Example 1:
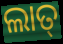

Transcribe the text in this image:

ଲାତ୍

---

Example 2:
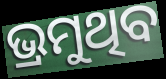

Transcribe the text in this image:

ଭ୍ରମୁଥିବ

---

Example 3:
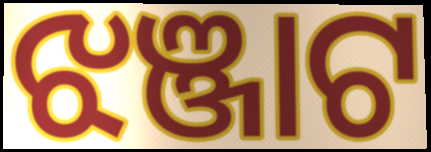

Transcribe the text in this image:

ଝଞ୍ଜାଟ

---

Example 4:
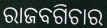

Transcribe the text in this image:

ରାଜବଗିଚାର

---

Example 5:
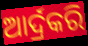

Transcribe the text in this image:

ଆର୍ଦ୍ରକରି